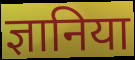
ज्ञानिया